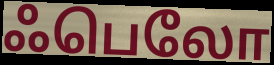
ஃபெலோ